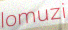
lomuzi